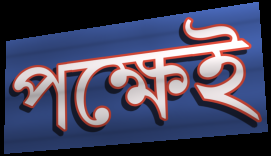
পক্ষেই